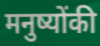
मनुष्योंकी